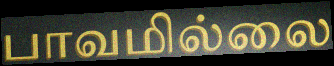
பாவமில்லை